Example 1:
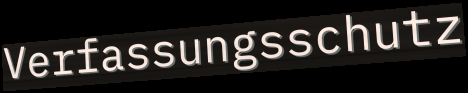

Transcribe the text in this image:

Verfassungsschutz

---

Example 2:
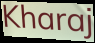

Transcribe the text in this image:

Kharaj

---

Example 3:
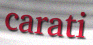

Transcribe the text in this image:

carati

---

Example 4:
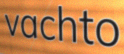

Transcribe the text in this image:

vachto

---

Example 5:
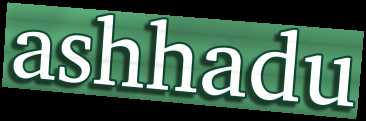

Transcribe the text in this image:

ashhadu